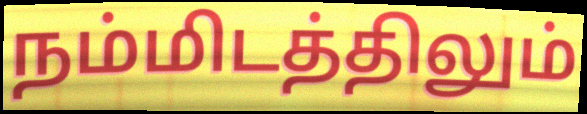
நம்மிடத்திலும்